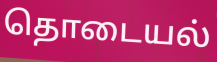
தொடையல்